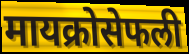
मायक्रोसेफली